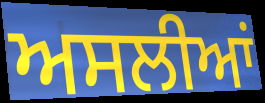
ਅਸਲੀਆਂ